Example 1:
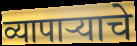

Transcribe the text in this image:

व्यापाऱ्याचे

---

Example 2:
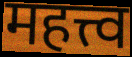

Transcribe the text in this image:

महत्त्व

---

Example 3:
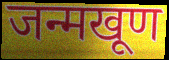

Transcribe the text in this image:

जन्मखूण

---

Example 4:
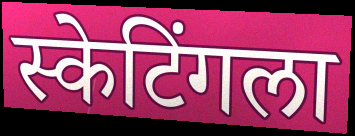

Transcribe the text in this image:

स्केटिंगला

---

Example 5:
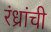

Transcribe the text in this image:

रंध्रांची